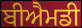
ਬੀਐਮਡੀ